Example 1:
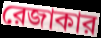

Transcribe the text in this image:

রেজাকার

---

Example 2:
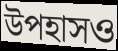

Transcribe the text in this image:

উপহাসও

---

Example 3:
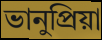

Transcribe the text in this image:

ভানুপ্রিয়া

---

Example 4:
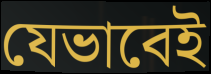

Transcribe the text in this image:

যেভাবেই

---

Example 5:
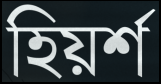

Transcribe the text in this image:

হিয়র্শ